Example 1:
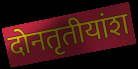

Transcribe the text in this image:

दोनतृतीयांश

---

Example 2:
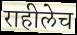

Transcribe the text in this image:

राहीलेच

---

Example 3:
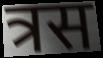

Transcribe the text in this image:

त्रस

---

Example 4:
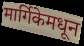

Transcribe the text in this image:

मार्गिकेमधून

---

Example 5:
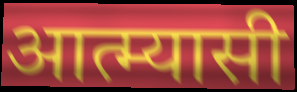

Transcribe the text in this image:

आत्म्यासी